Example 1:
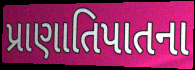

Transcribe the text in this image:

પ્રાણાતિપાતના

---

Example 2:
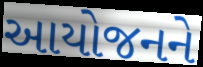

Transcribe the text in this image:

આયોજનને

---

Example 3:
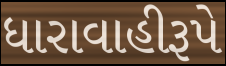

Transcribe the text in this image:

ધારાવાહીરૂપે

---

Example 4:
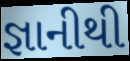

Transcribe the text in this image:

જ્ઞાનીથી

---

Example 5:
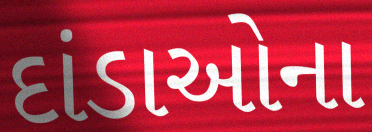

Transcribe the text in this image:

દાંડાઓના